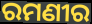
ରମଣୀର